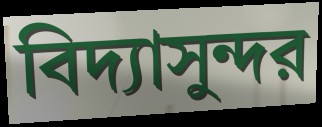
বিদ্যাসুন্দর